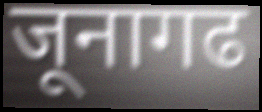
जूनागढ